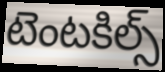
టెంటకిల్స్